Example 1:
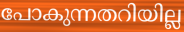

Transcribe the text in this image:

പോകുന്നതറിയില്ല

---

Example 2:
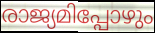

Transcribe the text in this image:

രാജ്യമിപ്പോഴും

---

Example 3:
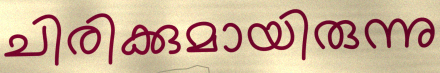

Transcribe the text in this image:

ചിരിക്കുമായിരുന്നു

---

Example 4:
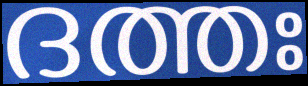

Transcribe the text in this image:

ദത്തഃ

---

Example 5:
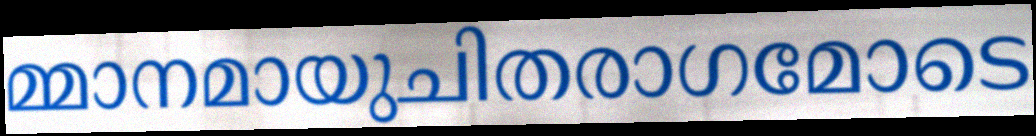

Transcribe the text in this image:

മ്മാനമായുചിതരാഗമോടെ